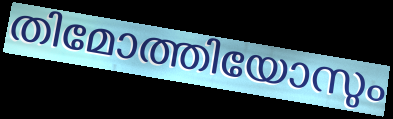
തിമോത്തിയോസും